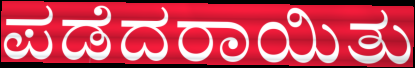
ಪಡೆದರಾಯಿತು